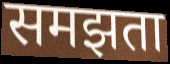
समझता